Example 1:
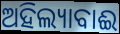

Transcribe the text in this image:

ଅହିଲ୍ୟାବାଈ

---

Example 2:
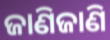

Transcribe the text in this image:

ଜାଣିଜାଣି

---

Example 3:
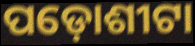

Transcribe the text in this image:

ପଡ଼ୋଶୀଟା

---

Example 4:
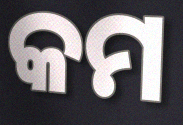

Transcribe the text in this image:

କମ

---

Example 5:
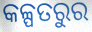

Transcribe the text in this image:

କଳ୍ପତରୁର